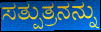
ಸತ್ಪುತ್ರನನ್ನು